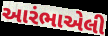
આરંભાએલી